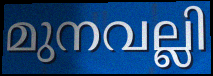
മുനവല്ലി